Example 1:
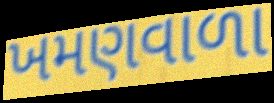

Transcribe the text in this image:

ખમણવાળા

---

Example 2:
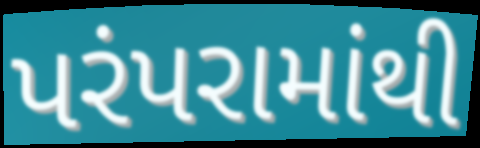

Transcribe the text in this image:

પરંપરામાંથી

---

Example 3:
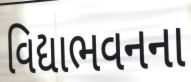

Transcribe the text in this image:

વિદ્યાભવનના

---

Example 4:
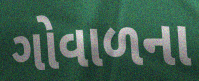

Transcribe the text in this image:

ગોવાળના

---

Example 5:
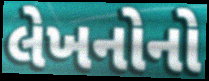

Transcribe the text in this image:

લેખનોનો